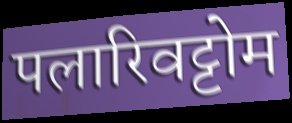
पलारिवट्टोम